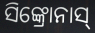
ସିଙ୍କ୍ରୋନାସ୍